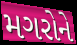
મગરોને